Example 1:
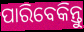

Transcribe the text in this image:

ପାରିବେକିନ୍ତୁ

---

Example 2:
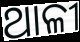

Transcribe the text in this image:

ଥାଳୀ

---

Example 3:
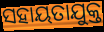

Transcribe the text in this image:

ସହାୟତାଯୁକ୍ତ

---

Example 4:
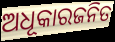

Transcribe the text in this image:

ଅଧୂକାରଜନିତ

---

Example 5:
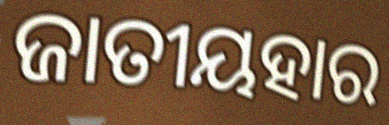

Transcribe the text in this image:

ଜାତୀୟହାର